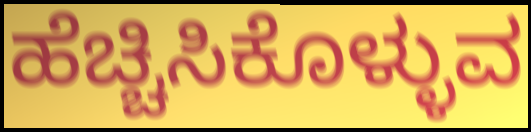
ಹೆಚ್ಚಿಸಿಕೊಳ್ಳುವ